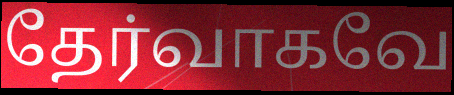
தேர்வாகவே